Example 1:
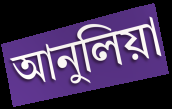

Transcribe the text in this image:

আনুলিয়া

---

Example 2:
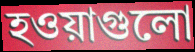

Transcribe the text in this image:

হওয়াগুলো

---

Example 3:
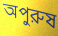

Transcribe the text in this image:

অপুরুষ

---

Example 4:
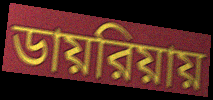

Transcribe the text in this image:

ডায়রিয়ায়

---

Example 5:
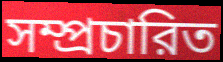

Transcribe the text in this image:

সম্প্রচারিত